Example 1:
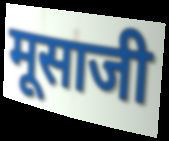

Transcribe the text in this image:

मूसाजी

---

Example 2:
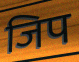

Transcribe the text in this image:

जिप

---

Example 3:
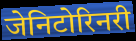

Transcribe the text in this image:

जेनिटोरिनरी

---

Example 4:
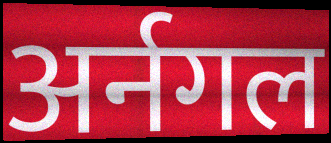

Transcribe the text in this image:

अर्नगल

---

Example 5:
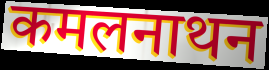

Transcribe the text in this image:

कमलनाथन